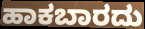
ಹಾಕಬಾರದು